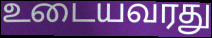
உடையவரது